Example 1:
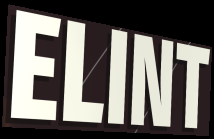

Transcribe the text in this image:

ELINT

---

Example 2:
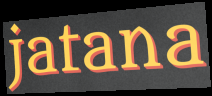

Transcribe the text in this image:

jatana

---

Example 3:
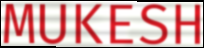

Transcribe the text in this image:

MUKESH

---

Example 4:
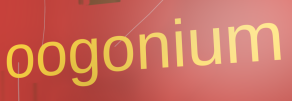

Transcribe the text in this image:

oogonium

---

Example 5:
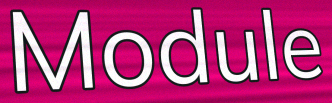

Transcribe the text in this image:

Module